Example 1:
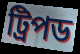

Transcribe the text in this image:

ট্রিপড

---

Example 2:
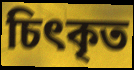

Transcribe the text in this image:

চিৎকৃত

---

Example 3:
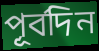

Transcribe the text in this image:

পূর্বদিন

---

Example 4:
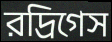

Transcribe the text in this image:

রদ্রিগেস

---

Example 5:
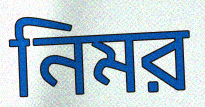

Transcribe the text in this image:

নিমর